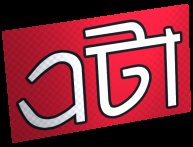
এটা